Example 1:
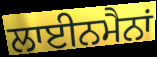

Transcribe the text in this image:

ਲਾਈਨਮੈਨਾਂ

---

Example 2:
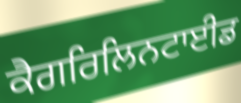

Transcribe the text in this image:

ਕੈਗਰਿਲਿਨਟਾਈਡ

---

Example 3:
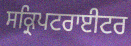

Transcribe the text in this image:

ਸਕ੍ਰਿਪਟਰਾਈਟਰ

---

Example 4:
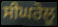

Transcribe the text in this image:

ਸੀਘਰੇਲੂ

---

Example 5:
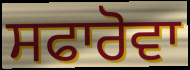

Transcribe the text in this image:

ਸਫਾਰੋਵਾ